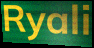
Ryali